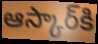
ఆస్కార్‌కి